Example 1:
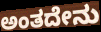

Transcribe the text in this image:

ಅಂತದೇನು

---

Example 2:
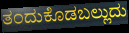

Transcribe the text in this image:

ತಂದುಕೊಡಬಲ್ಲುದು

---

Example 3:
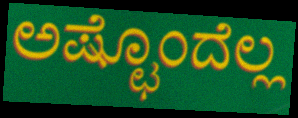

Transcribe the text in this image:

ಅಷ್ಟೊಂದೆಲ್ಲ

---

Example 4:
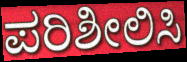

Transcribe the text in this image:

ಪರಿಶೀಲಿಸಿ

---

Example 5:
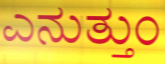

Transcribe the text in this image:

ಎನುತ್ತುಂ